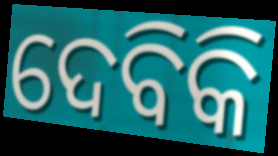
ଦେବିକି